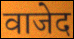
वाजेद